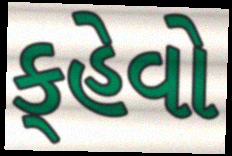
ક્‌હેવો